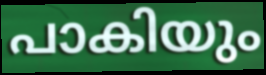
പാകിയും